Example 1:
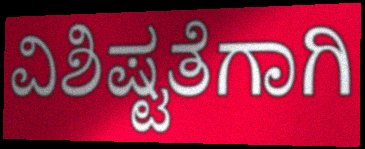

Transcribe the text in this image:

ವಿಶಿಷ್ಟತೆಗಾಗಿ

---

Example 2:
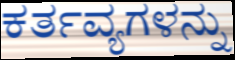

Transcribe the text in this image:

ಕರ್ತವ್ಯಗಳನ್ನು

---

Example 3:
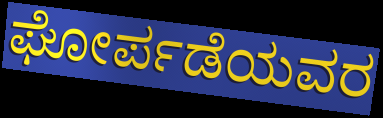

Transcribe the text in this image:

ಘೋರ್ಪಡೆಯವರ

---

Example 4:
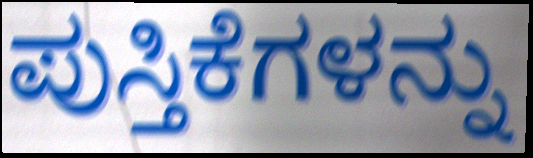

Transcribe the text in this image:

ಪುಸ್ತಿಕೆಗಳನ್ನು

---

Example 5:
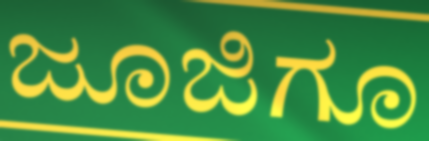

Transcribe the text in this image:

ಜೂಜಿಗೂ